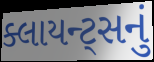
ક્લાયન્ટ્સનું